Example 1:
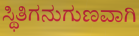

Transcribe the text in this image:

ಸ್ಥಿತಿಗನುಗುಣವಾಗಿ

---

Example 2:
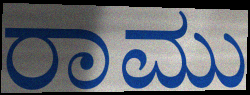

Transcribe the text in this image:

ರಾಮು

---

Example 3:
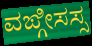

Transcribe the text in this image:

ವಙ್ಗೀಸಸ್ಸ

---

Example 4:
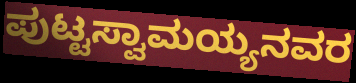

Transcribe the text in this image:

ಪುಟ್ಟಸ್ವಾಮಯ್ಯನವರ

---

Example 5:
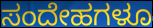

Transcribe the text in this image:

ಸಂದೇಹಗಳೂ